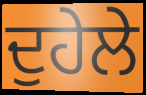
ਦੁਹੇਲੇ